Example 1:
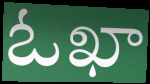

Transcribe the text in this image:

ఓఖా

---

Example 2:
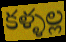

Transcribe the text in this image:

కళ్ళల్ల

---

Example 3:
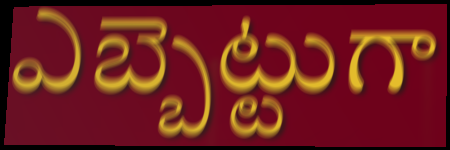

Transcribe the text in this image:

ఎబ్బెట్టుగా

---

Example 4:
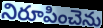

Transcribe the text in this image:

నిరూపించెను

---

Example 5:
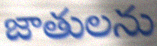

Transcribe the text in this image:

జాతులను